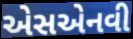
એસએનવી